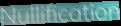
Nullification